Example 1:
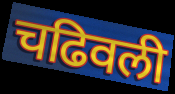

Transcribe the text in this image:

चढिवली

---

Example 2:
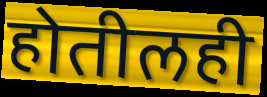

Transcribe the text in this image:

होतीलही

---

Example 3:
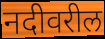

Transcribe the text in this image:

नदीवरील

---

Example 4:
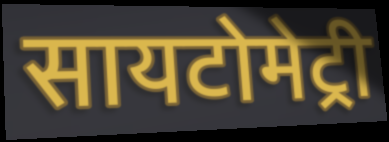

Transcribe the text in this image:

सायटोमेट्री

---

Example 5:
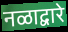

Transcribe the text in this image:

नळाद्वारे